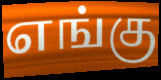
எங்கு